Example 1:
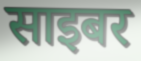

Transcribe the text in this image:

साइबर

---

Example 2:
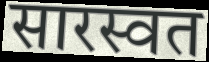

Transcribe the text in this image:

सारस्वत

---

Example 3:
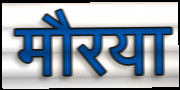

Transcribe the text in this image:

मौरया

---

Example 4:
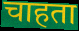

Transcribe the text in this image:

चाहता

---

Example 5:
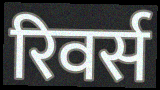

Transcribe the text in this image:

रिवर्स